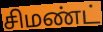
சிமண்ட்